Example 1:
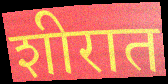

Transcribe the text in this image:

शीरात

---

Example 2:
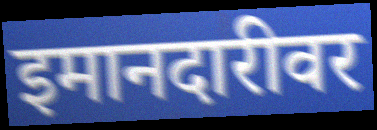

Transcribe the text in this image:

इमानदारीवर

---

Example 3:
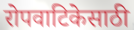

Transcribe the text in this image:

रोपवाटिकेसाठी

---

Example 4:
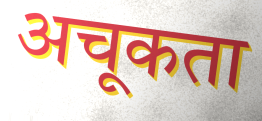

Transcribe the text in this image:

अचूकता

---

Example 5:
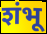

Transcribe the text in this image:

शंभू